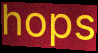
hops